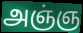
அஞ்ஞ